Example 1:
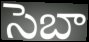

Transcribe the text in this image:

సెబా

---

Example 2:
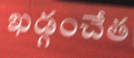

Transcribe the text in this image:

ఖడ్గంచేత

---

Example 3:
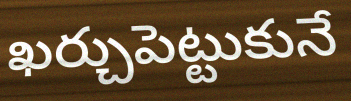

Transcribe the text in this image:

ఖర్చుపెట్టుకునే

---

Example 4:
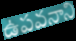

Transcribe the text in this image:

ఉపవనాని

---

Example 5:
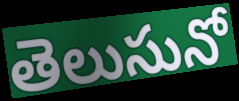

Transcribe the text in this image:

తెలుసునో